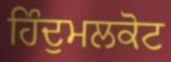
ਹਿੰਦੁਮਲਕੋਟ